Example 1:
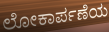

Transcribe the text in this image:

ಲೋಕಾರ್ಪಣೆಯ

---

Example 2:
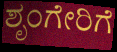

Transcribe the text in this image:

ಶೃಂಗೇರಿಗೆ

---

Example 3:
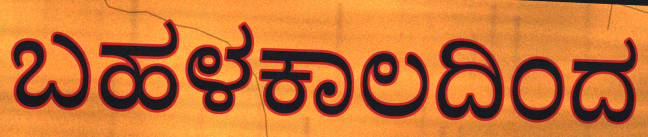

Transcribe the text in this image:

ಬಹಳಕಾಲದಿಂದ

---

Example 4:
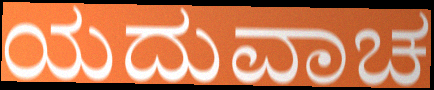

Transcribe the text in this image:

ಯದುವಾಚ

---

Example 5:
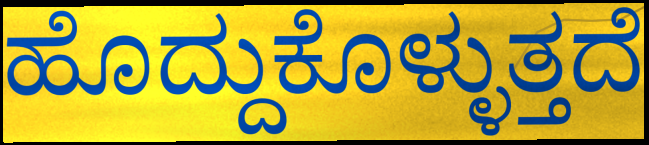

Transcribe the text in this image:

ಹೊದ್ದುಕೊಳ್ಳುತ್ತದೆ